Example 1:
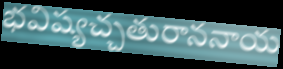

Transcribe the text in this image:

భవిష్యచ్చతురాననాయ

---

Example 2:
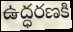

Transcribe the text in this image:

ఉద్ధరణకి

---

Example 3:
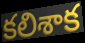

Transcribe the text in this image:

కలిశాక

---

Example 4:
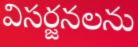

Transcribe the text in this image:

విసర్జనలను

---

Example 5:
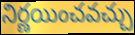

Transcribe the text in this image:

నిర్ణయించవచ్చు